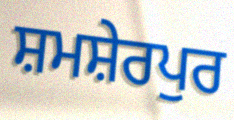
ਸ਼ਮਸ਼ੇਰਪੁਰ